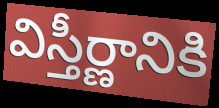
విస్తీర్ణానికి